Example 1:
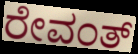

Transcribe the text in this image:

ರೇವಂತ್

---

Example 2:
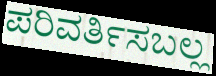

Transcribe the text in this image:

ಪರಿವರ್ತಿಸಬಲ್ಲ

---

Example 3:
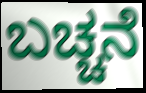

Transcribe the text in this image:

ಬಚ್ಚನೆ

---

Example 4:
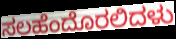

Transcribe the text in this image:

ಸಲಹೆಂದೊರಲಿದಳು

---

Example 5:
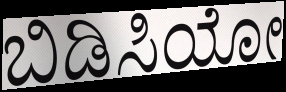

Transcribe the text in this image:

ಬಿಡಿಸಿಯೋ